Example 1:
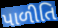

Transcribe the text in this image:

પાળીતિ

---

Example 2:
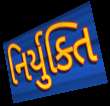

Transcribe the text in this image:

નિર્યુક્તિ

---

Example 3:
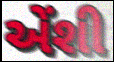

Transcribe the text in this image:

એંશી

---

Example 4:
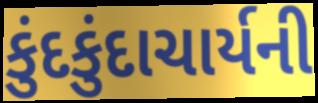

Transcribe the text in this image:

કુંદકુંદાચાર્યની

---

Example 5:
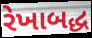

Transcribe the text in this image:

રેખાબદ્ધ